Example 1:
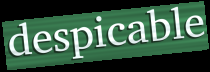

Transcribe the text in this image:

despicable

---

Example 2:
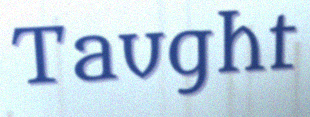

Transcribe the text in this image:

Taught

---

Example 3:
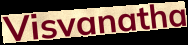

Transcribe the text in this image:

Visvanatha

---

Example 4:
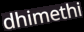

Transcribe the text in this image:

dhimethi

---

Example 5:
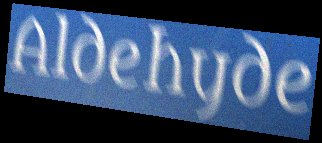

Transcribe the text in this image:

Aldehyde